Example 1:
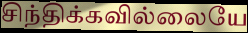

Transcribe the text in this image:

சிந்திக்கவில்லையே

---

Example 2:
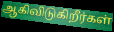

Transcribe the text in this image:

ஆகிவிடுகிறீர்கள்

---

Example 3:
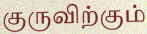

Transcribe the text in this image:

குருவிற்கும்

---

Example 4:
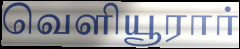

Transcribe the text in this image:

வெளியூரார்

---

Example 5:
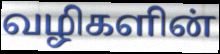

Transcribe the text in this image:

வழிகளின்